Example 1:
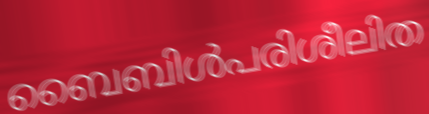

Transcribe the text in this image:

ബൈബിൾപരിശീലിത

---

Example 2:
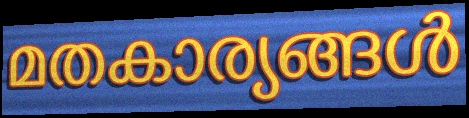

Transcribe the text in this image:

മതകാര്യങ്ങൾ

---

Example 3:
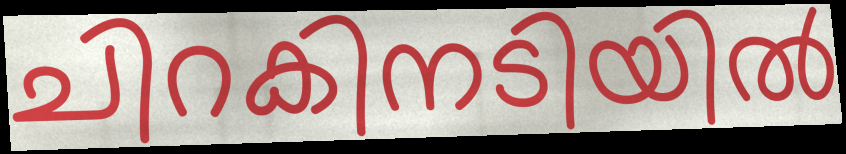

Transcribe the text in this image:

ചിറകിനടിയിൽ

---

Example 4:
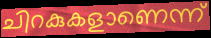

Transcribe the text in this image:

ചിറകുകളാണെന്ന്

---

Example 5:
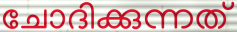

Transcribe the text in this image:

ചോദിക്കുന്നത്